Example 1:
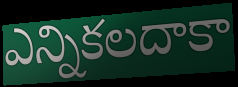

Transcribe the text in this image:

ఎన్నికలదాకా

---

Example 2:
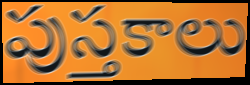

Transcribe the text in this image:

పుస్తకాలు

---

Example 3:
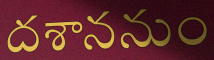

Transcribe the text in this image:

దశాననుం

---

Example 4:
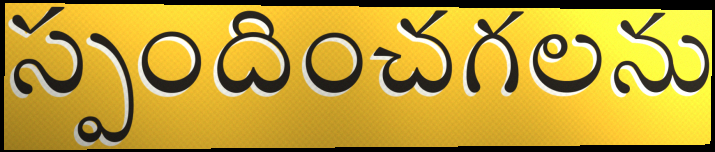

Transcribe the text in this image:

స్పందించగలను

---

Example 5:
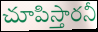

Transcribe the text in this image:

చూపిస్తారనీ